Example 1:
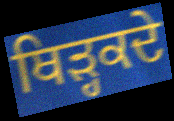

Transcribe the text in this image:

ਥਿੜ੍ਹਕਦੇ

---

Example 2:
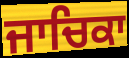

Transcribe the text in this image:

ਜਾਚਿਕਾ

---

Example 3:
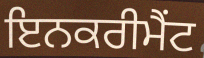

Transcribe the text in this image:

ਇਨਕਰੀਮੈਂਟ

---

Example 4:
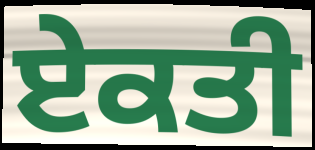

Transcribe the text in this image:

ਏਕਤੀ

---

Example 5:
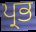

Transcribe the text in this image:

ਪ੍ਰਭ